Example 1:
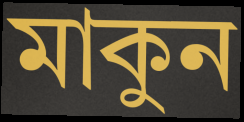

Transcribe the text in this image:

মাকুন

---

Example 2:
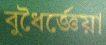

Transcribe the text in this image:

বুধৈর্জ্ঞেয়া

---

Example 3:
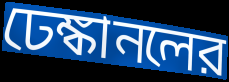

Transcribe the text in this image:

ঢেঙ্কানলের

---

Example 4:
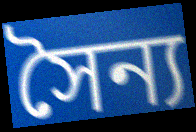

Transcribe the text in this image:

সৈন্য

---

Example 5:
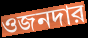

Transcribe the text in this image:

ওজনদার